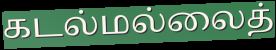
கடல்மல்லைத்